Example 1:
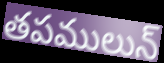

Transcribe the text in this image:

తపములున్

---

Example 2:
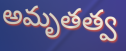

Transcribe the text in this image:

అమృతత్వ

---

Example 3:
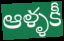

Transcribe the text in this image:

ఆళ్ళకీ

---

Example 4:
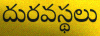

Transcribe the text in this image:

దురవస్థలు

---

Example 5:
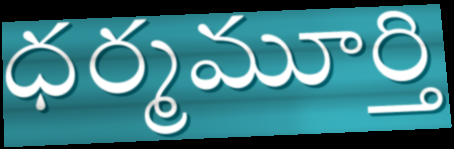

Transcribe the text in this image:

ధర్మమూర్తి